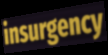
insurgency